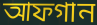
আফগান